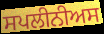
ਸਪਲੀਨੀਅਸ